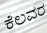
ಕೆಲವರ